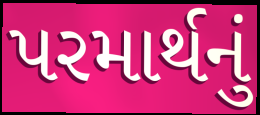
પરમાર્થનું